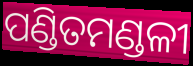
ପଣ୍ଡିତମଣ୍ଡଳୀ